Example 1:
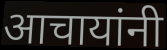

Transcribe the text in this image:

आचायांनी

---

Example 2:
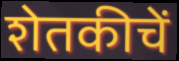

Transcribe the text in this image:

शेतकीचें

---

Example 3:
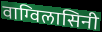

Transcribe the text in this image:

वाग्विलासिनी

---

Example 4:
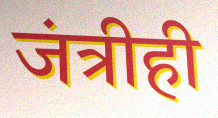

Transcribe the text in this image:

जंत्रीही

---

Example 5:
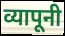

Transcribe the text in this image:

व्यापूनी